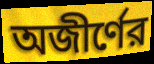
অজীর্ণের